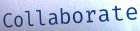
Collaborate